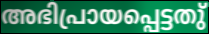
അഭിപ്രായപ്പെട്ടതു്